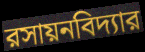
রসায়নবিদ্যার